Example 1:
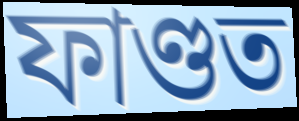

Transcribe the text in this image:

ফাণ্ডত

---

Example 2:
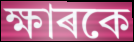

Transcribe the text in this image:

ক্ষাৰকে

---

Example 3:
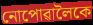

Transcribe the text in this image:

নোপোৱালৈকে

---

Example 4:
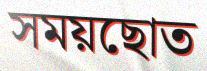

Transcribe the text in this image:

সময়ছোত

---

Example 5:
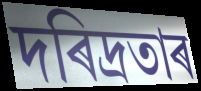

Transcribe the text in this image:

দৰিদ্ৰতাৰ